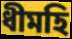
ধীমহি